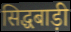
सिद्धबाड़ी